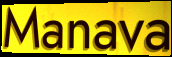
Manava